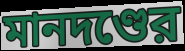
মানদণ্ডের